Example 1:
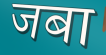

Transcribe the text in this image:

जबा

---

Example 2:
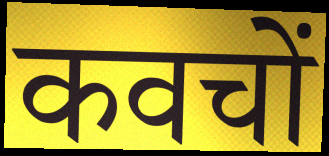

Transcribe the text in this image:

कवचों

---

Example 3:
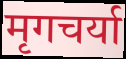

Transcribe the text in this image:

मृगचर्या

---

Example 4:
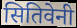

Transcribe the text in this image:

सितिवेनी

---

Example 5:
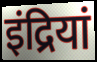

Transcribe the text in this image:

इंद्रियां